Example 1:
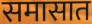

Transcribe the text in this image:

समासात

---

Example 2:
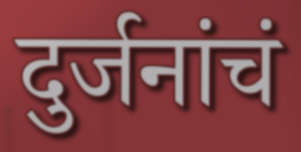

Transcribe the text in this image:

दुर्जनांचं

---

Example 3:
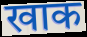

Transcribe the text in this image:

खाक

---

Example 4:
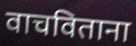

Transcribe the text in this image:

वाचविताना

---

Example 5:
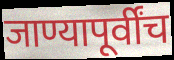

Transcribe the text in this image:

जाण्यापूर्वींच